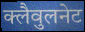
क्लैवुलनेट